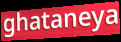
ghataneya